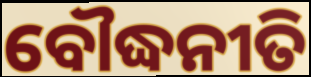
ବୌଦ୍ଧନୀତି